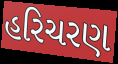
હરિચરણ